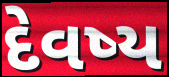
દેવષ્ય